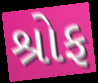
શ્રોફ